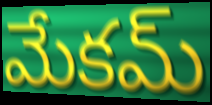
మేకమ్